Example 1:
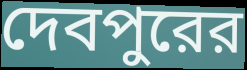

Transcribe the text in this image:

দেবপুরের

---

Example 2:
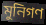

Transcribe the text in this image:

মুনিগণ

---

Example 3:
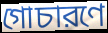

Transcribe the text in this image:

গোচারণে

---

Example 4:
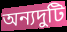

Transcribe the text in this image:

অন্যদুটি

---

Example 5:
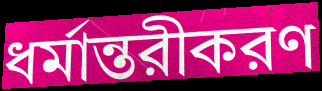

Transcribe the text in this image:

ধর্মান্তরীকরণ